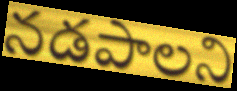
నడపాలని